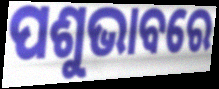
ପଶୁଭାବରେ